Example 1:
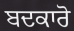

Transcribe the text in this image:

ਬਦਕਾਰੋ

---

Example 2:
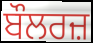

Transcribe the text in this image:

ਬੌਲਰਜ਼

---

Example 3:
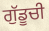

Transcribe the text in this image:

ਗੁੱਡੂਚੀ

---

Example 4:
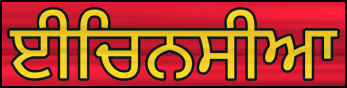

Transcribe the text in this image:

ਈਚਿਨਸੀਆ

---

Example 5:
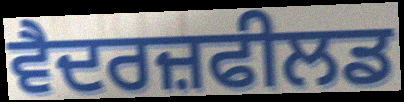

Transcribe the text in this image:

ਵੈਦਰਜ਼ਫੀਲਡ